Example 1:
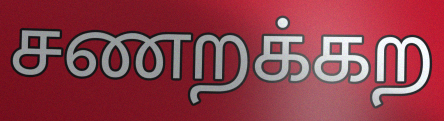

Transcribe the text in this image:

சணறக்கற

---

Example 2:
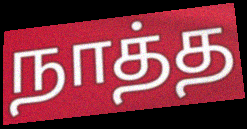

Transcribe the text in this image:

நாத்த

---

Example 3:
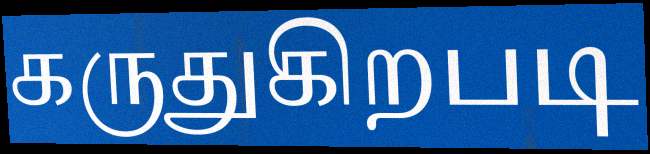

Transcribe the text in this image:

கருதுகிறபடி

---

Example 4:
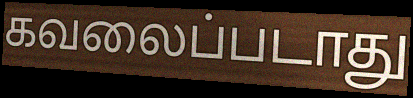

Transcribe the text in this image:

கவலைப்படாது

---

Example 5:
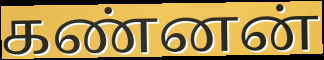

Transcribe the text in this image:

கண்னன்